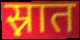
स्नात